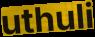
uthuli